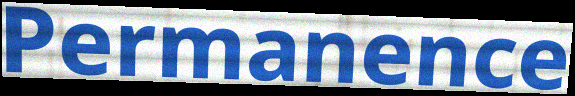
Permanence